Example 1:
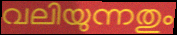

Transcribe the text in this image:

വലിയുന്നതും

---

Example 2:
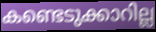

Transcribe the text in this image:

കണ്ടെടുക്കാറില്ല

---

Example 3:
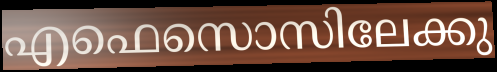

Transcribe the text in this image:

എഫെസൊസിലേക്കു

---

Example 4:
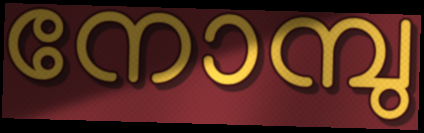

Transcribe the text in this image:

നോമ്പു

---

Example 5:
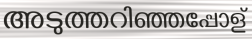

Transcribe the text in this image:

അടുത്തറിഞ്ഞപ്പോള്